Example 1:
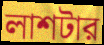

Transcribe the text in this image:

লাশটার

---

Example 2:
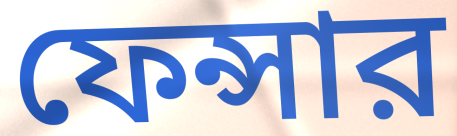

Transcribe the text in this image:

ফেন্সার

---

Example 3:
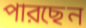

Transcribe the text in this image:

পারছেন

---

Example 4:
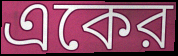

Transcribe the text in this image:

একের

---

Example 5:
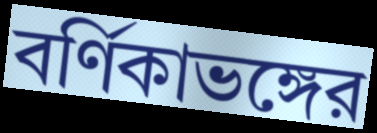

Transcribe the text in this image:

বর্ণিকাভঙ্গের